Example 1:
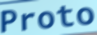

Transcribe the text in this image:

Proto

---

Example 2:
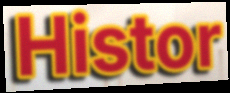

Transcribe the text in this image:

Histor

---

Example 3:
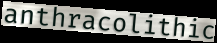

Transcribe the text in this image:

anthracolithic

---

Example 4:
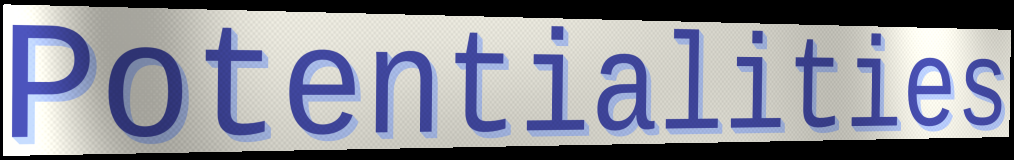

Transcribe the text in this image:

Potentialities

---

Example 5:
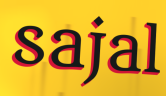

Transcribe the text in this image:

sajal